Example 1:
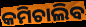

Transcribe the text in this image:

କମିଚାଲିବ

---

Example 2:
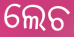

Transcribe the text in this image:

ଲେଚ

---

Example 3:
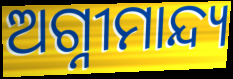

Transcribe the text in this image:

ଅଗ୍ନୀମାନ୍ଦ୍ୟ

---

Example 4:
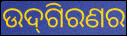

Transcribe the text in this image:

ଉଦ୍‌ଗିରଣର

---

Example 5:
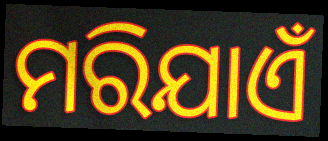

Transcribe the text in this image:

ମରିଯାଏଁ